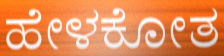
ಹೇಳಕೋತ